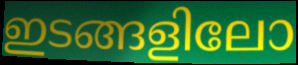
ഇടങ്ങളിലോ